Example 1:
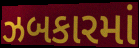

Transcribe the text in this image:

ઝબકારમાં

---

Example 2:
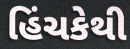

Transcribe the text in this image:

હિંચકેથી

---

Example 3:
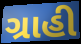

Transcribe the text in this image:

ગ્રાહી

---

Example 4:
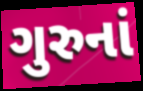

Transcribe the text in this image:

ગુરુનાં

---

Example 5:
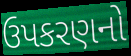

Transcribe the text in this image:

ઉપકરણનો